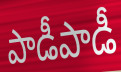
పాడీపాడీ